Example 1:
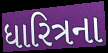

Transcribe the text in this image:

ધારિત્રના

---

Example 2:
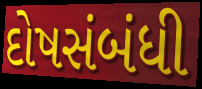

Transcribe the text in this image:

દોષસંબંધી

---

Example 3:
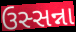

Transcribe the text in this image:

ઉસ્સન્ના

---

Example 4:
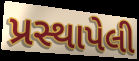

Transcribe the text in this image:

પ્રસ્થાપેલી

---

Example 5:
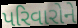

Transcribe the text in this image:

પરિવારોને